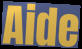
Aide